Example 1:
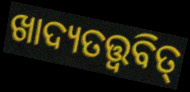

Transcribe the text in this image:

ଖାଦ୍ୟତତ୍ତ୍ୱବିତ୍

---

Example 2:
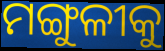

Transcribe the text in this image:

ମଙ୍ଗୁଳୀକୁ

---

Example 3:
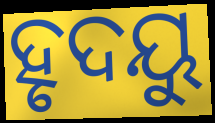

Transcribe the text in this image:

ହୃଦୟୁ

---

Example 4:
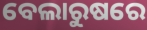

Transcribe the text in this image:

ବେଲାରୁଷରେ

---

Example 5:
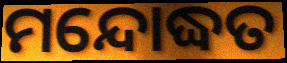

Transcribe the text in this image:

ମନ୍ଦୋଦ୍ଧତ